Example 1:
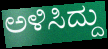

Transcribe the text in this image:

ಅಳಿಸಿದ್ದು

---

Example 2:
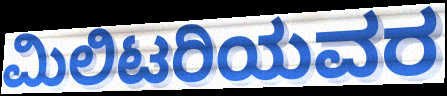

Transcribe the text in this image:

ಮಿಲಿಟರಿಯವರ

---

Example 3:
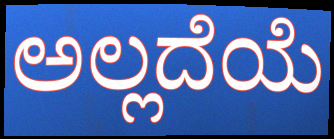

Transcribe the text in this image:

ಅಲ್ಲದೆಯೆ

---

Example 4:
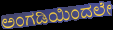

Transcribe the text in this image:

ಅಂಗಡಿಯಿಂದಲೇ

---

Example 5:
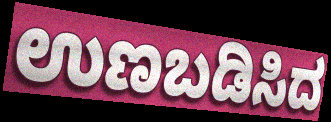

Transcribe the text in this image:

ಉಣಬಡಿಸಿದ